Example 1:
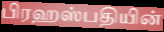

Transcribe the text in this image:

பிரஹஸ்பதியின்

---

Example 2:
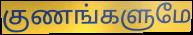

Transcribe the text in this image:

குணங்களுமே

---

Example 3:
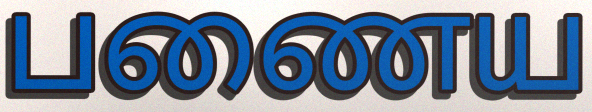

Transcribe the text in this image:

பணைய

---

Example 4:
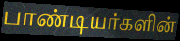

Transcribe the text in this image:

பாண்டியர்களின்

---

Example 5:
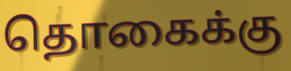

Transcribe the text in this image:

தொகைக்கு